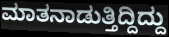
ಮಾತನಾಡುತ್ತಿದ್ದಿದ್ದು